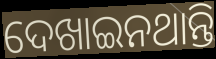
ଦେଖାଇନଥାନ୍ତି